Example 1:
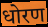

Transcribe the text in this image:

धोरण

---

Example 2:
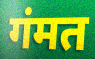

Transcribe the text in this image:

गंमत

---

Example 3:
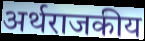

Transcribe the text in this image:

अर्थराजकीय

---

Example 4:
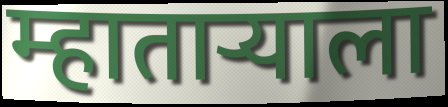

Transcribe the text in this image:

म्हाताऱ्याला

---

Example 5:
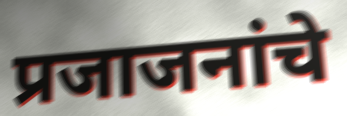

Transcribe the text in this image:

प्रजाजनांचे